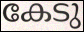
കേടു